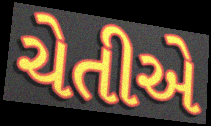
ચેતીએ